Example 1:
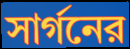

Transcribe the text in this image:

সার্গনের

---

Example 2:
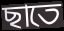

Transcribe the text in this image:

ছাতে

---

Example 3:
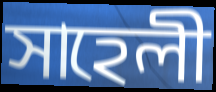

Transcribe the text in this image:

সাহেলী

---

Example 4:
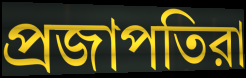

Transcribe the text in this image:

প্রজাপতিরা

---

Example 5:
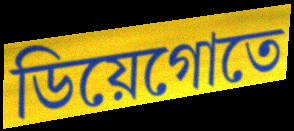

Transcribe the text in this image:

ডিয়েগোতে